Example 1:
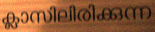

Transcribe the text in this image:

ക്ലാസിലിരിക്കുന്ന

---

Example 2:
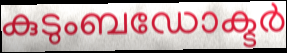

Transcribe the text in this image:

കുടുംബഡോക്ടർ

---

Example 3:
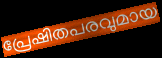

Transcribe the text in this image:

പ്രേഷിതപരവുമായ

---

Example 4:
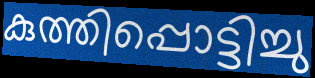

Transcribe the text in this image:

കുത്തിപ്പൊട്ടിച്ചു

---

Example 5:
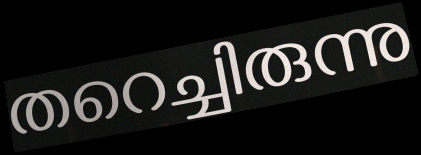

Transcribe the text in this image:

തറെച്ചിരുന്നു